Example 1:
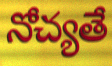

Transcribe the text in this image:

నోచ్యతే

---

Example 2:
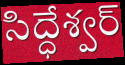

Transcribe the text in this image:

సిద్ధేశ్వర్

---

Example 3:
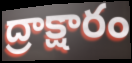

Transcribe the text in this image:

ద్రాక్షారం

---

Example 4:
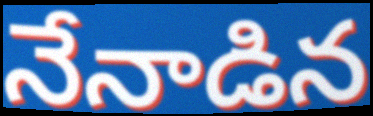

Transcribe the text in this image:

నేనాడిన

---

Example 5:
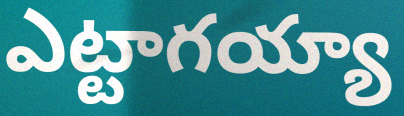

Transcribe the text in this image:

ఎట్టాగయ్యా